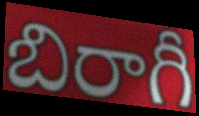
బిరాగీ